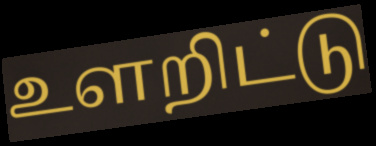
உளறிட்டு